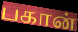
பகான்